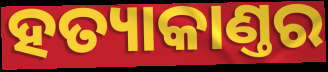
ହତ୍ୟାକାଣ୍ତର